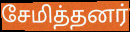
சேமித்தனர்